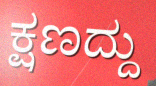
ಕ್ಷಣದ್ದು